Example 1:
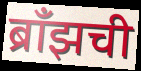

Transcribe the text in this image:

ब्राँझची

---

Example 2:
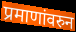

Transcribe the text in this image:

प्रमाणांवरुन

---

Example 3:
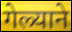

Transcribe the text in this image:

गेल्याने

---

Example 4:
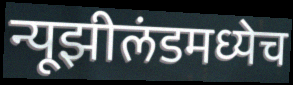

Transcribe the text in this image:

न्यूझीलंडमध्येच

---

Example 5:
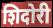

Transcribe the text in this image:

शिदोरी